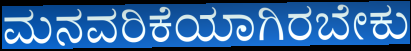
ಮನವರಿಕೆಯಾಗಿರಬೇಕು